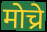
मोच्रे